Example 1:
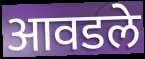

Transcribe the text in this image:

आवडले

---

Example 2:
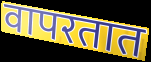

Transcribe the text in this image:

वापरतात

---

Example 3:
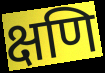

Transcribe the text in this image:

क्षणि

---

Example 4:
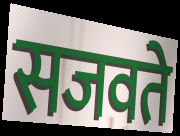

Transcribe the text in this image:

सजवते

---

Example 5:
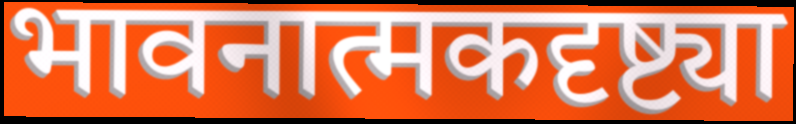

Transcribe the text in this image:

भावनात्मकदृष्ट्या